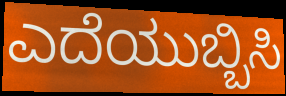
ಎದೆಯುಬ್ಬಿಸಿ